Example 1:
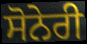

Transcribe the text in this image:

ਸੋਨੇਰੀ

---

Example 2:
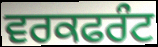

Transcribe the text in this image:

ਵਰਕਫਰੰਟ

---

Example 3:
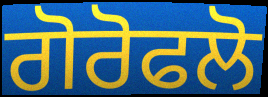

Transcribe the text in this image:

ਗੋਰੋਫਲੋ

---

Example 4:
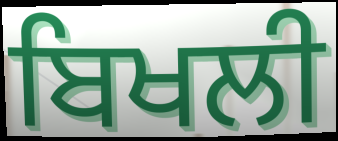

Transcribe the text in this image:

ਬਿਖਲੀ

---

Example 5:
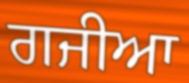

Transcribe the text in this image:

ਗਜੀਆ